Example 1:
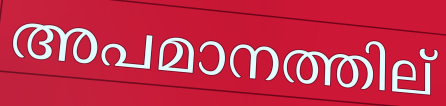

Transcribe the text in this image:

അപമാനത്തില്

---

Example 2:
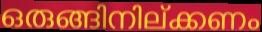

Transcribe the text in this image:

ഒരുങ്ങിനില്ക്കണം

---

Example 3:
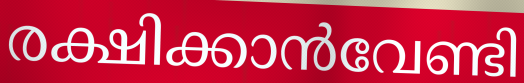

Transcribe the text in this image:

രക്ഷിക്കാൻവേണ്ടി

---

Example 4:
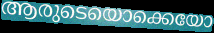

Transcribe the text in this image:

ആരുടെയൊക്കെയോ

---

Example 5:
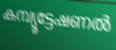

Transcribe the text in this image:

കമ്പ്യൂട്ടേഷണൽ